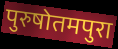
पुरुषोतमपुरा